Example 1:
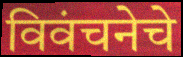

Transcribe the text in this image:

विवंचनेचे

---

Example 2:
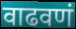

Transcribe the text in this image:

वाढवणं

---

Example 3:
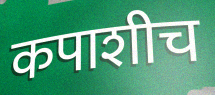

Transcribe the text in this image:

कपाशीच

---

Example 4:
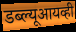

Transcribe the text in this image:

डब्ल्यूआयव्ही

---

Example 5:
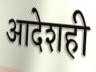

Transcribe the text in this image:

आदेशही